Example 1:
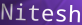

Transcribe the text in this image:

Nitesh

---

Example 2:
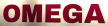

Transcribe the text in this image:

OMEGA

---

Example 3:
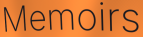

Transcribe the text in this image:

Memoirs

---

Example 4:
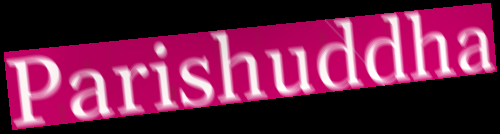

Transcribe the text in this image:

Parishuddha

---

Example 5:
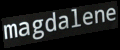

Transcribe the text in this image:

magdalene